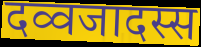
दव्वजादस्स